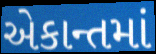
એકાન્તમાં